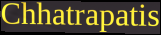
Chhatrapatis